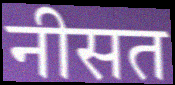
नीसत